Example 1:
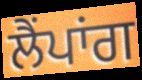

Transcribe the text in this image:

ਲੈਂਪਾਂਗ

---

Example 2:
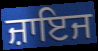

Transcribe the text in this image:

ਜ਼ਾਇਜ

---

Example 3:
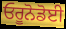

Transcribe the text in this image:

ਓਰੂਨੋਡੋਈ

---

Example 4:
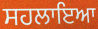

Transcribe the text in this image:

ਸਹਲਾਇਆ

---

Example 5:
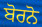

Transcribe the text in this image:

ਬੋਰਨੋ